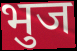
भुज